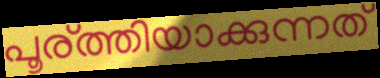
പൂര്ത്തിയാക്കുന്നത്